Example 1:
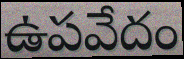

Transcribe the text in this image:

ఉపవేదం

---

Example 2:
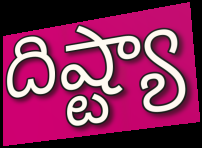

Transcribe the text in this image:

దిష్ట్యా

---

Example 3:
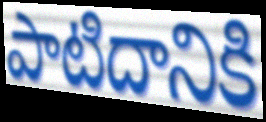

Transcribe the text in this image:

పాటిదానికి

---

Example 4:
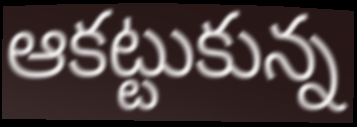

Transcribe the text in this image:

ఆకట్టుకున్న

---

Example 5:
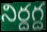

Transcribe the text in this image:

నిర్దగ్ద